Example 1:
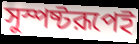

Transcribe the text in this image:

সুস্পষ্টরূপেই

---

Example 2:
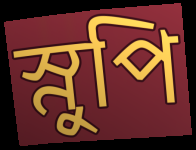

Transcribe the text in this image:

স্নুপি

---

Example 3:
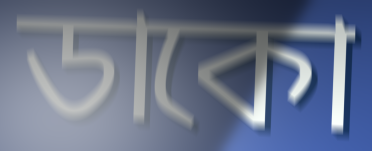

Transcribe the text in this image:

ডাকো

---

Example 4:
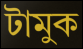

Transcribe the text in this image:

টামুক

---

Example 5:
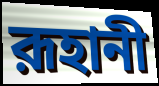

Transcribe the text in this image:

রূহানী